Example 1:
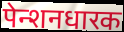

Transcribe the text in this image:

पेन्शनधारक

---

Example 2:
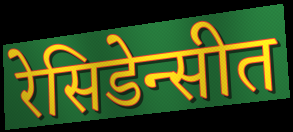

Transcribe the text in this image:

रेसिडेन्सीत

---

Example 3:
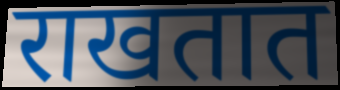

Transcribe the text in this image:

राखतात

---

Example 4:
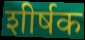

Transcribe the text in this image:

शीर्षक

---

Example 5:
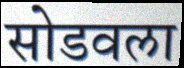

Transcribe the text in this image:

सोडवला